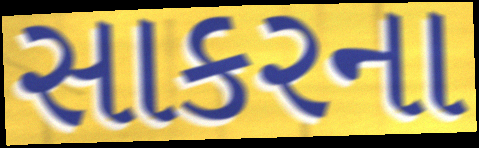
સાકરના